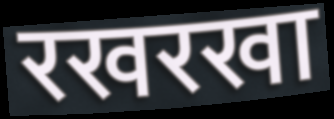
रखरखा